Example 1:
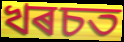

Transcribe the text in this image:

খৰচত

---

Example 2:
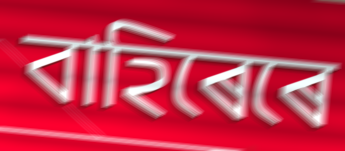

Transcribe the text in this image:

বাহিৰেৰে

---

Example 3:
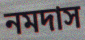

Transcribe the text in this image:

নমদাস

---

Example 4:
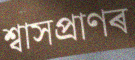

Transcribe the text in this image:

শ্বাসপ্ৰাণৰ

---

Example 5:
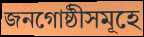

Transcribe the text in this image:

জনগোষ্ঠীসমূহে